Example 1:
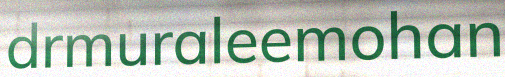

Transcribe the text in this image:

drmuraleemohan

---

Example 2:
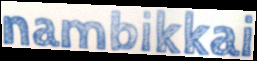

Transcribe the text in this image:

nambikkai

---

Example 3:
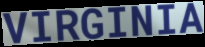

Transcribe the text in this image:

VIRGINIA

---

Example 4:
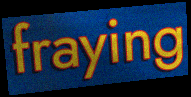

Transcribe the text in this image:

fraying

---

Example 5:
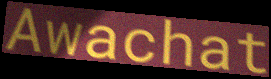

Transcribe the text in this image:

Awachat